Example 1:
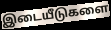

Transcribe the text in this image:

இடையீடுகளை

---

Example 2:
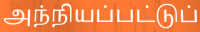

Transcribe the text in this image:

அந்நியப்பட்டுப்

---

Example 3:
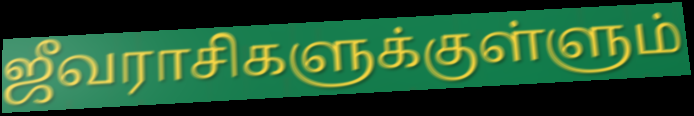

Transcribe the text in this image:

ஜீவராசிகளுக்குள்ளும்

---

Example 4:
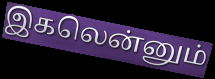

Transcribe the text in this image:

இகலென்னும்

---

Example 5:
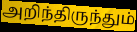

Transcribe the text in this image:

அறிந்திருந்தும்